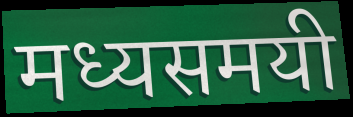
मध्यसमयी